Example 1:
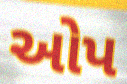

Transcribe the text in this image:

ઓપ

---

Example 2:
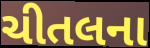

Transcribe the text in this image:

ચીતલના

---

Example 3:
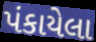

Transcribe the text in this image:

પંકાયેલા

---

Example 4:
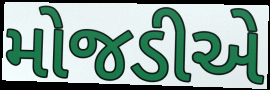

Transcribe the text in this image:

મોજડીએ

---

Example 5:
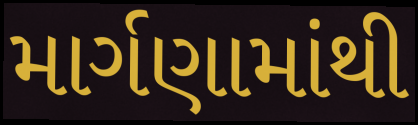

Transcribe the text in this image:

માર્ગણામાંથી